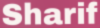
Sharif